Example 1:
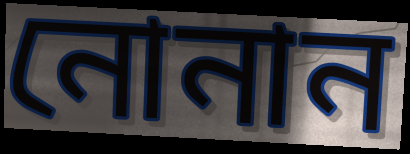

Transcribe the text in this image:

নোনান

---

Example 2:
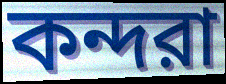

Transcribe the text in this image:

কন্দরা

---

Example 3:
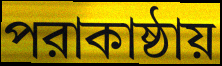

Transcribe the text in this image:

পরাকাষ্ঠায়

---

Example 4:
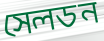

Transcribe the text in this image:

সেলডন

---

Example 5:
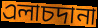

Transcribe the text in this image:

এলাচদানা